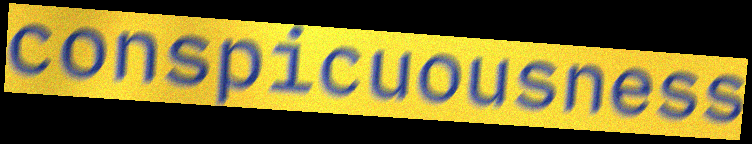
conspicuousness